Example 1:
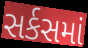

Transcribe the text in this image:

સર્કસમાં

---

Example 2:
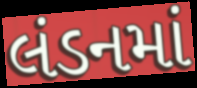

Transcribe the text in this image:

લંડનમાં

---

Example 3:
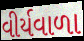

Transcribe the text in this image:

વીર્યવાળા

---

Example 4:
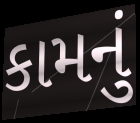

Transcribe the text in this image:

કામનું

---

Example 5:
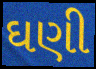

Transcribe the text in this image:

ઘણી